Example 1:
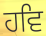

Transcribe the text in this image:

ਹਵਿ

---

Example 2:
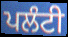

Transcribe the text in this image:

ਪਲੰਟੀ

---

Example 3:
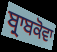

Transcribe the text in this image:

ਬ੍ਰਾਬਕੋਵਾ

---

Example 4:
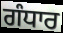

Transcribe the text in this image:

ਗੰਧਾਰ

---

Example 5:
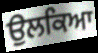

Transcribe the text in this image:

ਉਲਕਿਆ